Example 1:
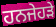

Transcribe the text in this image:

ਹਨਜੇਹੜੇ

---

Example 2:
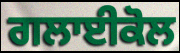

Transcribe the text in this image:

ਗਲਾਈਕੋਲ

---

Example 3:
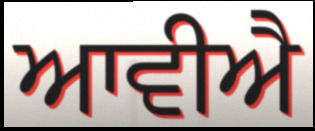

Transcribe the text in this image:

ਆਵੀਐ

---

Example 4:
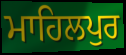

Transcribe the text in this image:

ਮਾਹਿਲਪੁਰ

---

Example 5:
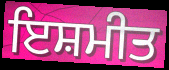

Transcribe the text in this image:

ਇਸ਼ਮੀਤ